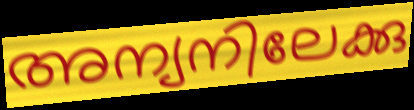
അന്യനിലേക്കു